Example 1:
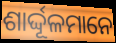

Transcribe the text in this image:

ଶାର୍ଦ୍ଦୂଳମାନେ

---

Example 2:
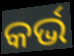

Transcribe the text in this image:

କର୍ଭ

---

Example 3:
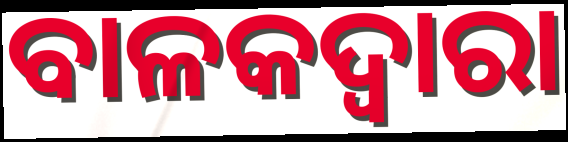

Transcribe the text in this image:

ବାଳକଦ୍ୱାରା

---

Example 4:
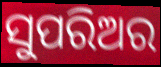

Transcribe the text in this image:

ସୁପରିଅର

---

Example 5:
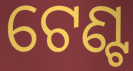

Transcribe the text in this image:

ଟେଣ୍ଟ